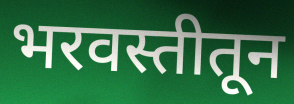
भरवस्तीतून